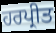
ਹਰਪ੍ਰੀਤ